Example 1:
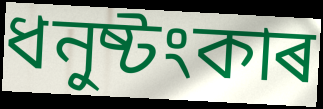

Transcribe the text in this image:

ধনুষ্টংকাৰ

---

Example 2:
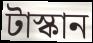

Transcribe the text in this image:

টাস্কান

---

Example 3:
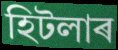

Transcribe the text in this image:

হিটলাৰ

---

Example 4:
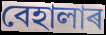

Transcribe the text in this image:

বেহালাৰ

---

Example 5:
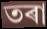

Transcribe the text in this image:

তৰা